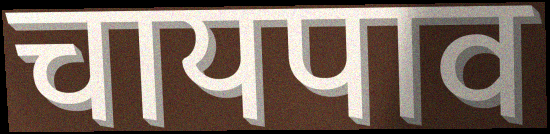
चायपाव